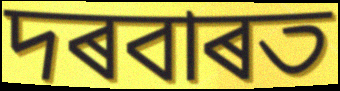
দৰবাৰত